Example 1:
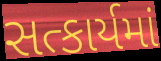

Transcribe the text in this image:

સત્કાર્યમાં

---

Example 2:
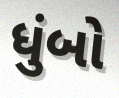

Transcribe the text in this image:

ધુંબો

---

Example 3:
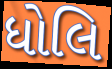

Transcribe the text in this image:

ધોલિ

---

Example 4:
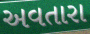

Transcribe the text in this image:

અવતારા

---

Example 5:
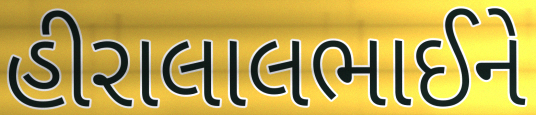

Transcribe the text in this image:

હીરાલાલભાઈને